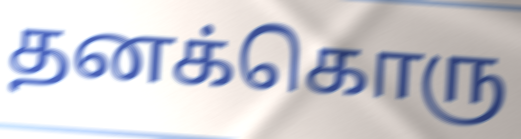
தனக்கொரு